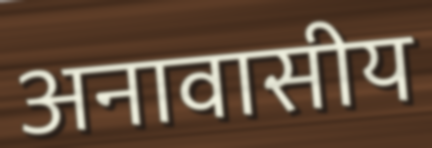
अनावासीय